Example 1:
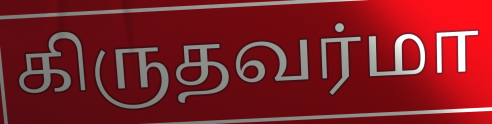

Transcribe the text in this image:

கிருதவர்மா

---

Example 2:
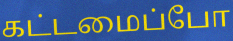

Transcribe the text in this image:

கட்டமைப்போ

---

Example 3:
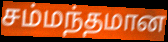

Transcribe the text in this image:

சம்மந்தமான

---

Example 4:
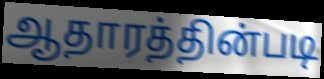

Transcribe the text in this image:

ஆதாரத்தின்படி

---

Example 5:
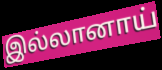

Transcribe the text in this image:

இல்லானாய்